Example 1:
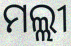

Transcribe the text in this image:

ମଲ୍ଲୀ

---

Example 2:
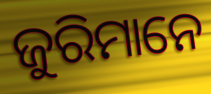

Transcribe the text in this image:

ଜୁରିମାନେ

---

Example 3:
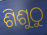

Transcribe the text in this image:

ଶିଶୁଠୁ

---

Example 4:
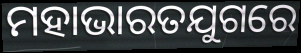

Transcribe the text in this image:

ମହାଭାରତଯୁଗରେ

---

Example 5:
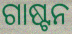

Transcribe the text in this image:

ଗାଷ୍ଟନ